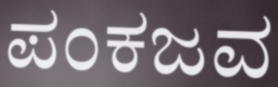
ಪಂಕಜವ